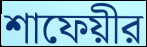
শাফেয়ীর